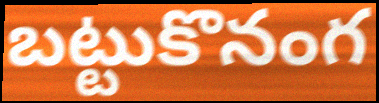
బట్టుకొనంగ